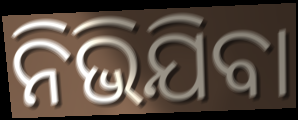
ନିଭିଯିବା